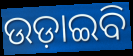
ଉଡ଼ାଇବି